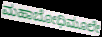
ಮಹಾಬೋಧಿಮೂಲೇ